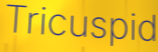
Tricuspid